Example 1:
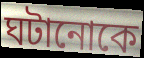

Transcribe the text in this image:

ঘটানোকে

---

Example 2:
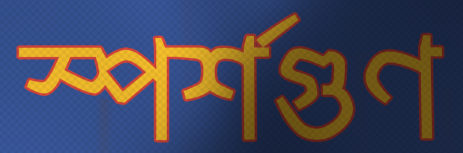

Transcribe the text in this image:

স্পর্শগুণ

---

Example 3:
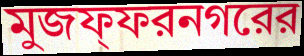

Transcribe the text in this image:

মুজফ্ফরনগরের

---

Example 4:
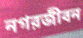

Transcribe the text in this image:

নগরজীবন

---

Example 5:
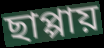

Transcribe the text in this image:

ছাপ্পায়